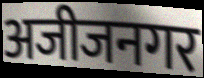
अजीजनगर